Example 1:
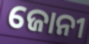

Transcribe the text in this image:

ଜୋନୀ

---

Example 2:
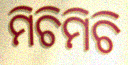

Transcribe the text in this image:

ମିଚିମିଚି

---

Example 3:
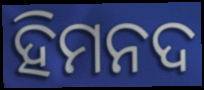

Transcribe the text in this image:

ହିମନଦ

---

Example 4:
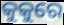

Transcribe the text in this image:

କୁକୁରେ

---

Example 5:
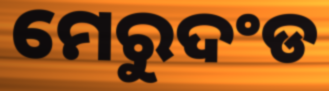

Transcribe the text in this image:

ମେରୁଦଂଡ